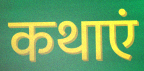
कथाएं